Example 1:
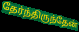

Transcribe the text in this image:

தேர்ந்திருந்தேன்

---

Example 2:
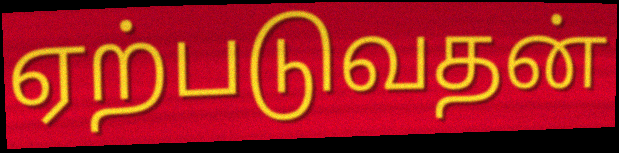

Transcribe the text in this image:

ஏற்படுவதன்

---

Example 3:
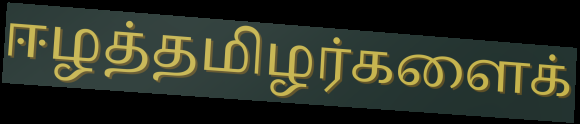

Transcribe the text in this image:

ஈழத்தமிழர்களைக்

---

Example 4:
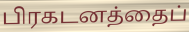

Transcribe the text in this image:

பிரகடனத்தைப்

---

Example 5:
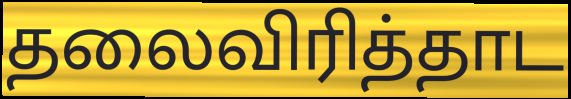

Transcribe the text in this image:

தலைவிரித்தாட